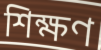
শিক্ষণ